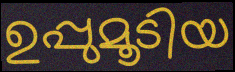
ഉപ്പുമൂടിയ